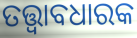
ତତ୍ତ୍ୱାବଧାରକ